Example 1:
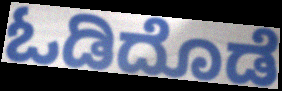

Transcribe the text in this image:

ಓಡಿದೊಡೆ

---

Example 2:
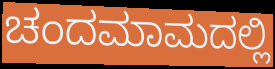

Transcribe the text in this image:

ಚಂದಮಾಮದಲ್ಲಿ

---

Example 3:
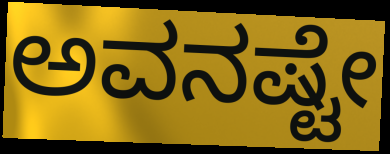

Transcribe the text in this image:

ಅವನಷ್ಟೇ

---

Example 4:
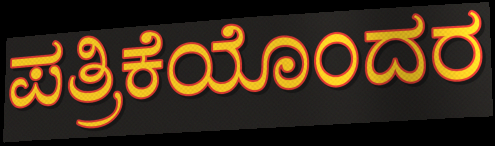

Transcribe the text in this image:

ಪತ್ರಿಕೆಯೊಂದರ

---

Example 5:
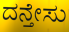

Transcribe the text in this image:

ದನ್ತೇಸು